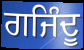
ਗਜਿੰਦੂ